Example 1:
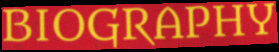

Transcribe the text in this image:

BIOGRAPHY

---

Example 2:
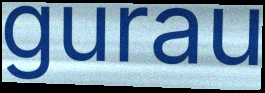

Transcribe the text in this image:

gurau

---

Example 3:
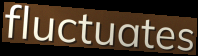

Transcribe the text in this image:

fluctuates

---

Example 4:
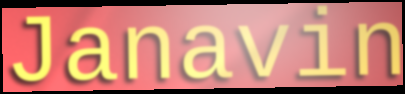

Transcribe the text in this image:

Janavin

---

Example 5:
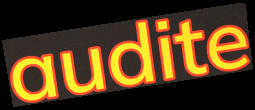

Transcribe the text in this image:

audite